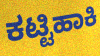
ಕಟ್ಟಿಹಾಕಿ